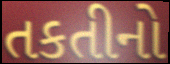
તકતીનો